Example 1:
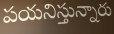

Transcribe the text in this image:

పయనిస్తున్నారు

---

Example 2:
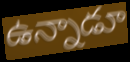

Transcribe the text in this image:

ఉన్నాడూ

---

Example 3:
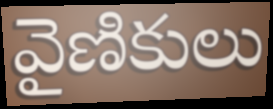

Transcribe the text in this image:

వైణికులు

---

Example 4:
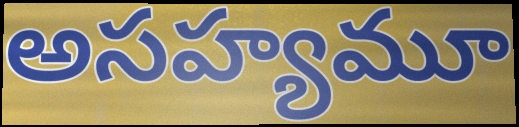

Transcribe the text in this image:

అసహ్యమూ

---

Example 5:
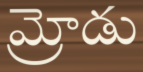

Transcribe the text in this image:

మ్రోడు